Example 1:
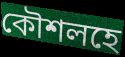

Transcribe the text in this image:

কৌশলহে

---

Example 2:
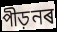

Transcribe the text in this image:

পীড়নৰ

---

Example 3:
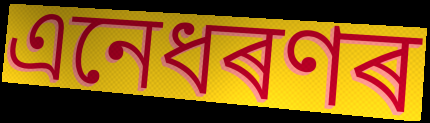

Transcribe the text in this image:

এনেধৰণৰ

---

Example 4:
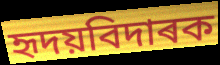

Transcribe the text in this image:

হৃদয়বিদাৰক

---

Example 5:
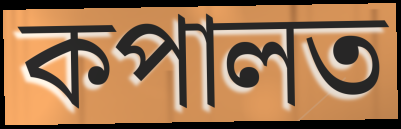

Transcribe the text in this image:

কপালত